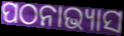
ପଠନାଭ୍ୟାସ